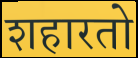
शहारतो